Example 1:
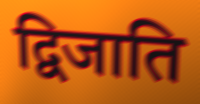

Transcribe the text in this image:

द्विजाति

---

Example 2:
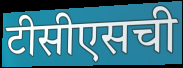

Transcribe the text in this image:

टीसीएसची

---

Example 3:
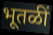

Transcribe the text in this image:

भूतळीं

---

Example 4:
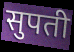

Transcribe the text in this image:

सुपती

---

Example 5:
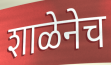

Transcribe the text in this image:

शाळेनेच